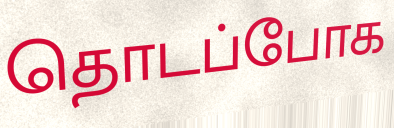
தொடப்போக